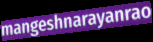
mangeshnarayanrao